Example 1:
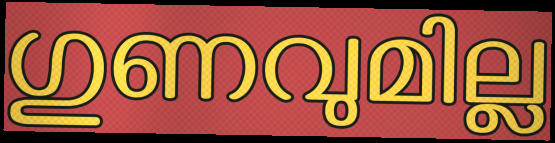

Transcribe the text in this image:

ഗുണവുമില്ല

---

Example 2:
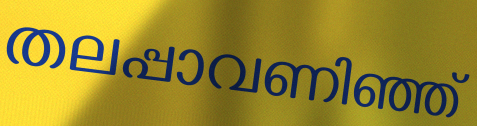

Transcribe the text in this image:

തലപ്പാവണിഞ്ഞ്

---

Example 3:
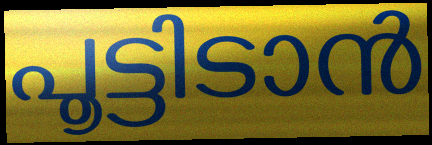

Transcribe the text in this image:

പൂട്ടിടാൻ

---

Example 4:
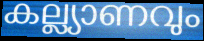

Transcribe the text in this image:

കല്ല്യാണവും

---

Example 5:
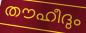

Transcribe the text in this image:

തൗഹീദും